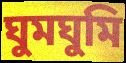
ঘুমঘুমি